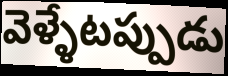
వెళ్ళేటప్పుడు